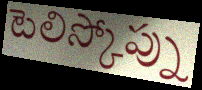
టెలిస్కోప్ను